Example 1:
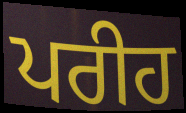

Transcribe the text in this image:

ਪਰੀਹ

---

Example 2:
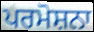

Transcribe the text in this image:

ਪਰਮੋਸ਼ਨਾ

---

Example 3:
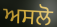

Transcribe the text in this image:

ਅਸਲੋ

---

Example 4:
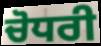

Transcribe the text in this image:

ਚੋਧਰੀ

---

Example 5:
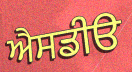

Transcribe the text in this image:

ਐਸਡੀੳ